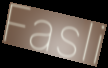
Fasli